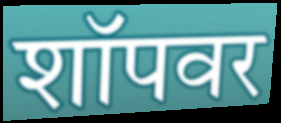
शॉपवर